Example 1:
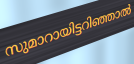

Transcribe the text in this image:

സുമാറായിട്ടറിഞ്ഞാൽ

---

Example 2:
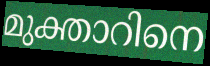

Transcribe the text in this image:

മുക്താറിനെ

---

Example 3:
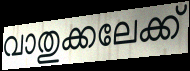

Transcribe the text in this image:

വാതുക്കലേക്ക്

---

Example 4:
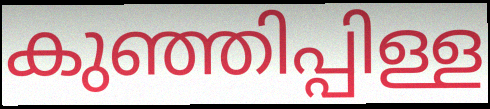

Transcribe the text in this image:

കുഞ്ഞിപ്പിള്ള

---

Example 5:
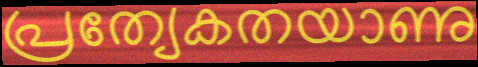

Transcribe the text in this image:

പ്രത്യേകതയാണു